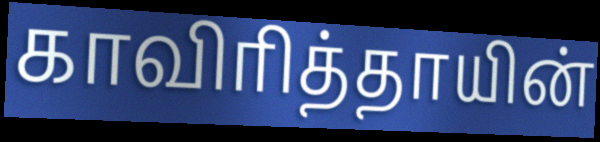
காவிரித்தாயின்